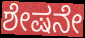
ಶೇಷನೇ